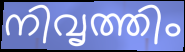
നിവൃത്തിം